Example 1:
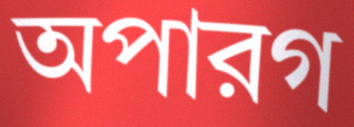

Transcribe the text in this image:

অপারগ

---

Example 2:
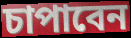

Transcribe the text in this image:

চাপাবেন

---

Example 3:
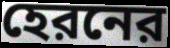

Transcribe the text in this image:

হেরনের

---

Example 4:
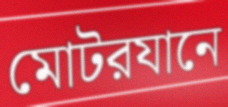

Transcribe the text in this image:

মোটরযানে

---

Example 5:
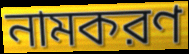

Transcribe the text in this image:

নামকরণ